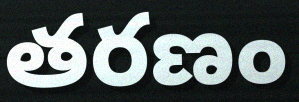
తరణం